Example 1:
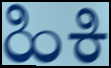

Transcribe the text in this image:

ಹಿಕಿ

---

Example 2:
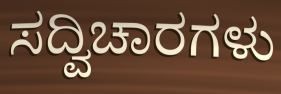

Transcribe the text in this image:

ಸದ್ವಿಚಾರಗಳು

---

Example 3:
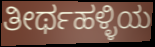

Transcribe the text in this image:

ತೀರ್ಥಹಳ್ಳಿಯ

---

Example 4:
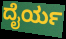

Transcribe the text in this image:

ದೈರ್ಯ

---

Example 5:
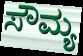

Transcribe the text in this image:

ಸೌಮ್ಯ